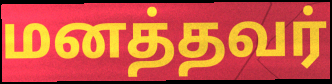
மனத்தவர்